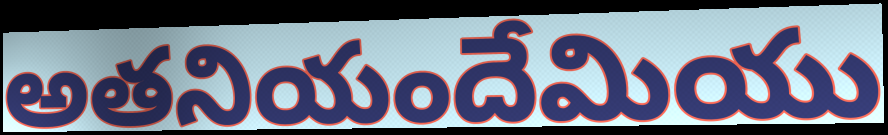
అతనియందేమియు